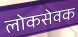
लोकसेवक